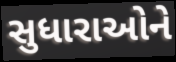
સુધારાઓને